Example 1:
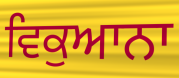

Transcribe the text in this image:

ਵਿਕੁਆਨਾ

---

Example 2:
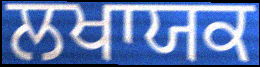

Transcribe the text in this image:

ਲਖਾਯਕ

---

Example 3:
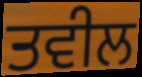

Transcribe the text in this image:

ਤਵੀਲ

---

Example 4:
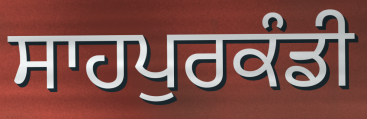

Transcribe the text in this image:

ਸਾਹਪੁਰਕੰਡੀ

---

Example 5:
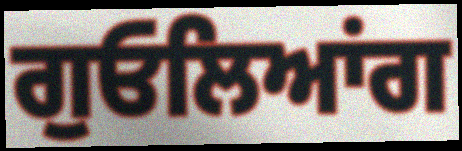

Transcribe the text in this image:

ਗੁਓਲਿਆਂਗ